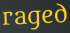
raged